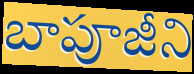
బాపూజీని